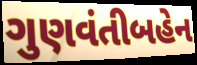
ગુણવંતીબહેન